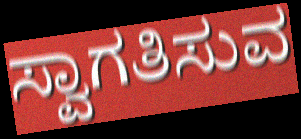
ಸ್ವಾಗತಿಸುವ